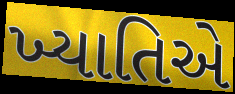
ખ્યાતિએ